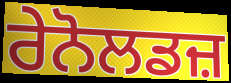
ਰੇਨੋਲਡਜ਼